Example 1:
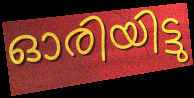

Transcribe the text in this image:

ഓരിയിട്ടു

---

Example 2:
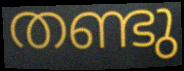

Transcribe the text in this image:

തണ്ടു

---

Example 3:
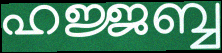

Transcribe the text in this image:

ഹജ്ജബ്ബ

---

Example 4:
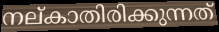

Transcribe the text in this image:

നല്കാതിരിക്കുന്നത്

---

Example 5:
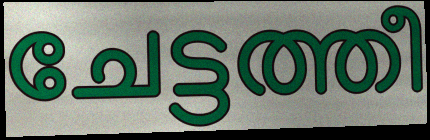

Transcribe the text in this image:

ചേട്ടത്തീ